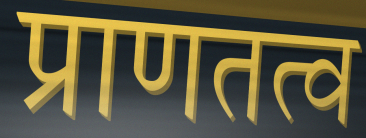
प्राणतत्व